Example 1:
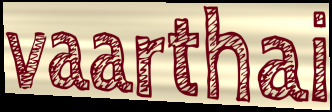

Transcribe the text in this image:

vaarthai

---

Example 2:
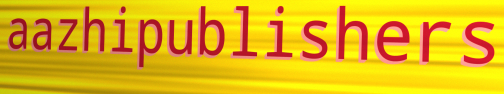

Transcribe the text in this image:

aazhipublishers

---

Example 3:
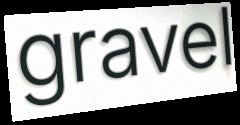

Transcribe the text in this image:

gravel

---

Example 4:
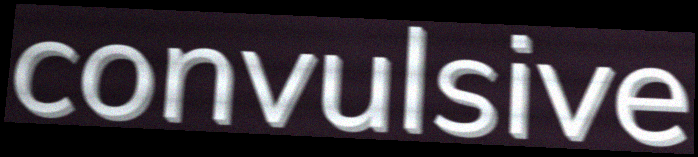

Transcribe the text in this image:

convulsive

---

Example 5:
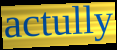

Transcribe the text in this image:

actully